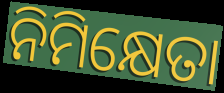
ନିମିକ୍ଷେତା